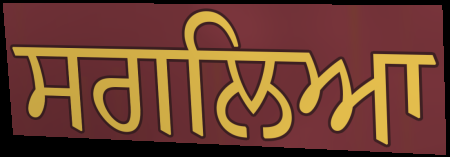
ਸਗਲਿਆ